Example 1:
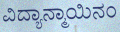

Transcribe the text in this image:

ವಿದ್ಯಾನ್ಮಾಯಿನಂ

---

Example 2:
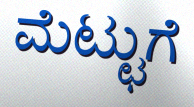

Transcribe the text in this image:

ಮೆಟ್ಟುಗೆ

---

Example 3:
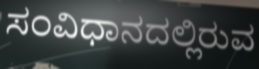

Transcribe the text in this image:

ಸಂವಿಧಾನದಲ್ಲಿರುವ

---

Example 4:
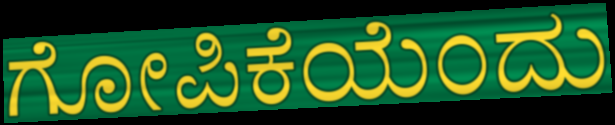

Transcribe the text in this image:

ಗೋಪಿಕೆಯೆಂದು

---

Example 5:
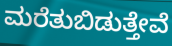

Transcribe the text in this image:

ಮರೆತುಬಿಡುತ್ತೇವೆ